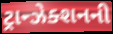
ટ્રાન્ઝેક્શનની